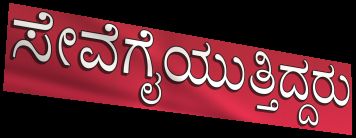
ಸೇವೆಗೈಯುತ್ತಿದ್ದರು